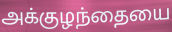
அக்குழந்தையை